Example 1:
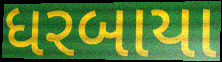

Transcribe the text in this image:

ધરબાયા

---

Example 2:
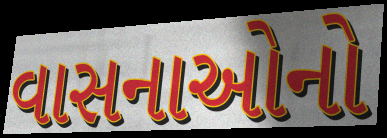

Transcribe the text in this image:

વાસનાઓનો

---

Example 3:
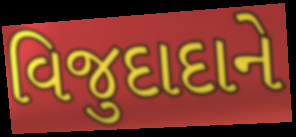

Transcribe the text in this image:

વિજુદાદાને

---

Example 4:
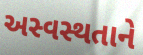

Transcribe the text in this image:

અસ્વસ્થતાને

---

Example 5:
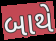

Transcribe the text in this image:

બાથે